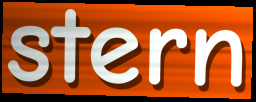
stern